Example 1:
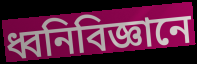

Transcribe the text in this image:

ধ্বনিবিজ্ঞানে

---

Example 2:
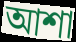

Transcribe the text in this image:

আশা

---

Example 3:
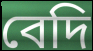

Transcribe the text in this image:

বেদি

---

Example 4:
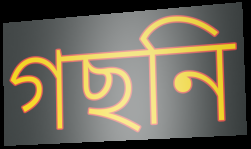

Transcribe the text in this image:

গছনি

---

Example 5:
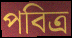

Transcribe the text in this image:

পবিত্ৰ